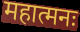
महात्मनः